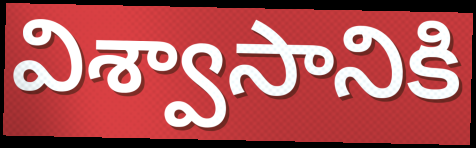
విశ్వాసానికి